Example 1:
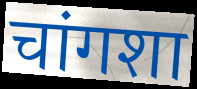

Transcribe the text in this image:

चांगशा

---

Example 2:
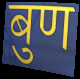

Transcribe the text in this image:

बुण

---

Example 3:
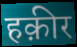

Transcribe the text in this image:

हक़ीर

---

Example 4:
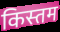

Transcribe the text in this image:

किस्तम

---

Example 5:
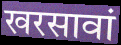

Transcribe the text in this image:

खरसावां